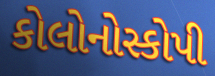
કોલોનોસ્કોપી